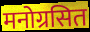
मनोग्रसित